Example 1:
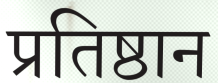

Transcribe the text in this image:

प्रतिष्ठान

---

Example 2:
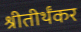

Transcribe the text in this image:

श्रीतीर्थंकर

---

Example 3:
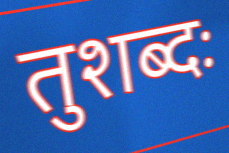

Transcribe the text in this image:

तुशब्दः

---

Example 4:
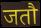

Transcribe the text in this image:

जतौ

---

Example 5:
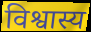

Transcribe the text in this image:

विश्वास्य